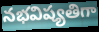
నభవిష్యతిగా